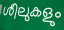
ശീലുകളും